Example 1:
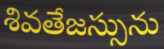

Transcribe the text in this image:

శివతేజస్సును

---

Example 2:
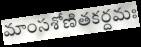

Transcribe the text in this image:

మాంసశోణితకర్దమః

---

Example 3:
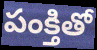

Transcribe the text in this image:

పంక్తితో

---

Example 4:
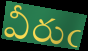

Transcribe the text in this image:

వీరుఁ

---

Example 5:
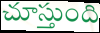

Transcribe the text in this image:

చూస్తుంది